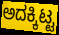
ಅದಕ್ಕಿಟ್ಟ